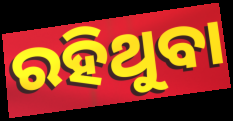
ରହିଥୁବା